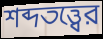
শব্দতত্ত্বের